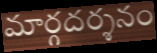
మార్గదర్శనం